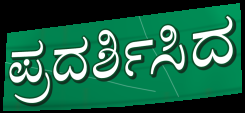
ಪ್ರದರ್ಶಿಸಿದ